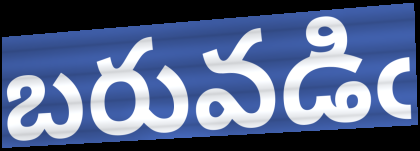
బరువడిఁ